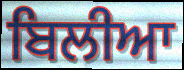
ਬਿਲੀਆ